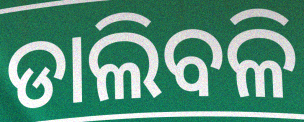
ଡାଲିବଳି